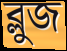
ব্লুজ